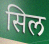
सिल